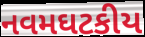
નવમઘટકીય